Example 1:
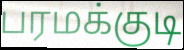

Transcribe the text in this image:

பரமக்குடி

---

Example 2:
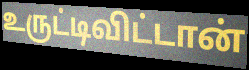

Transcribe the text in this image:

உருட்டிவிட்டான்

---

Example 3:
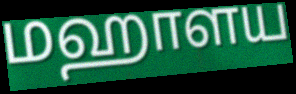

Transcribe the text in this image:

மஹாளய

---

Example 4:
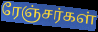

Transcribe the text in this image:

ரேஞ்சர்கள்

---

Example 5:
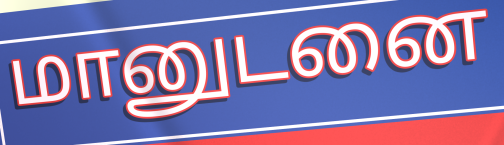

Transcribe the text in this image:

மானுடனை